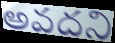
అవదని